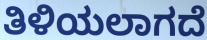
ತಿಳಿಯಲಾಗದೆ